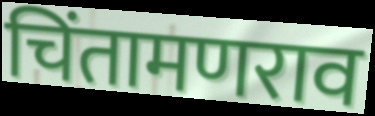
चिंतामणराव